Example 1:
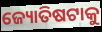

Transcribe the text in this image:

ଜ୍ୟୋତିଷଟାକୁ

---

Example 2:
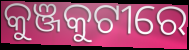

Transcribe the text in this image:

କୁଞ୍ଜକୁଟୀରେ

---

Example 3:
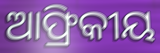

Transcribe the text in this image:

ଆଫ୍ରିକୀୟ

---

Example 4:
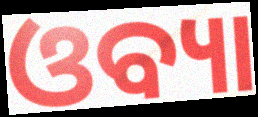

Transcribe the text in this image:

ଓବ୍ୟା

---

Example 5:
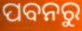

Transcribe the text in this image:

ପବନରୁ